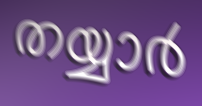
തയ്യാർ